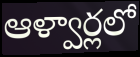
ఆళ్వార్లలో